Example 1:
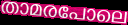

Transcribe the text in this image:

താമരപോലെ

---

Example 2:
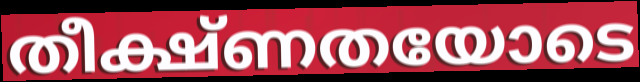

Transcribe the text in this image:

തീക്ഷ്ണതയോടെ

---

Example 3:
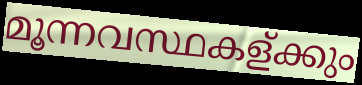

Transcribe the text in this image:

മൂന്നവസ്ഥകള്ക്കും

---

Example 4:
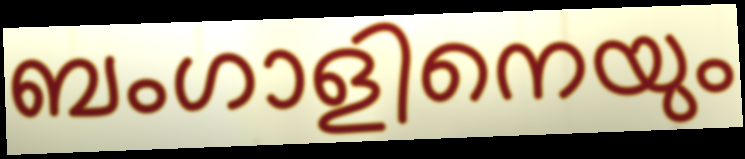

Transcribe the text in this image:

ബംഗാളിനെയും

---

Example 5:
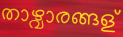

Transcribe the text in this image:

താഴ്വാരങ്ങള്